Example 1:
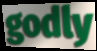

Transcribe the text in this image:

godly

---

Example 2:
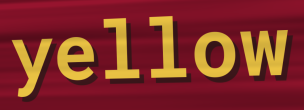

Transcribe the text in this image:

yellow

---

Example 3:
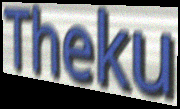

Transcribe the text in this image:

Theku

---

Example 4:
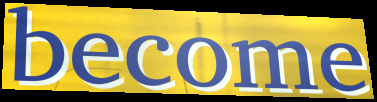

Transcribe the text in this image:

become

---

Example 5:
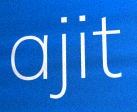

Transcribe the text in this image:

ajit